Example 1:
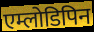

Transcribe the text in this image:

एम्लोडिपिन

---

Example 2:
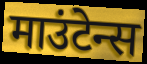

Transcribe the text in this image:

माउंटेन्स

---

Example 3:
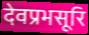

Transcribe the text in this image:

देवप्रभसूरि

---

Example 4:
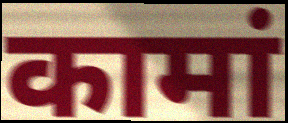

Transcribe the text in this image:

कामां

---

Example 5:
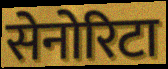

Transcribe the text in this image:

सेनोरिटा